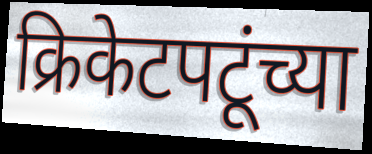
क्रिकेटपटूंच्या